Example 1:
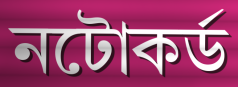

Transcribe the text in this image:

নটোকর্ড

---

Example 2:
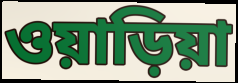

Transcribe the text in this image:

ওয়াড়িয়া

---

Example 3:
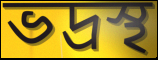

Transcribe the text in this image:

ভদ্রস্থ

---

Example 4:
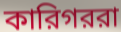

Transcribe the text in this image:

কারিগররা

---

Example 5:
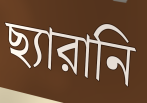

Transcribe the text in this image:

ছ্যারানি